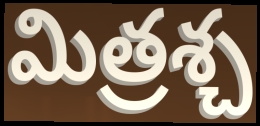
మిత్రశ్చ